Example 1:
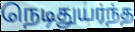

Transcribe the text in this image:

நெடிதுயர்ந்த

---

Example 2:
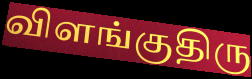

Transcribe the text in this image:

விளங்குதிரு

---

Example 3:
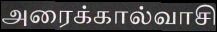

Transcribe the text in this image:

அரைக்கால்வாசி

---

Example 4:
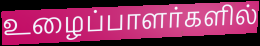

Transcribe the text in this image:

உழைப்பாளர்களில்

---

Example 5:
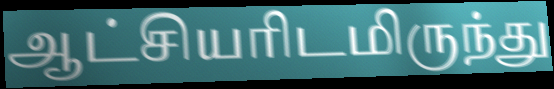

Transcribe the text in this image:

ஆட்சியரிடமிருந்து